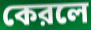
কেরলে